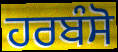
ਹਰਬੰਸੋ